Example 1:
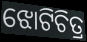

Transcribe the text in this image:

ଝୋଟିଚିତ୍ର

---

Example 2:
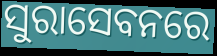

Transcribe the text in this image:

ସୁରାସେବନରେ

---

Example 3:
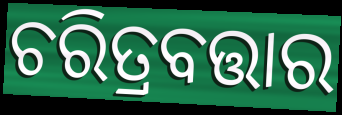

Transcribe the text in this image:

ଚରିତ୍ରବତ୍ତାର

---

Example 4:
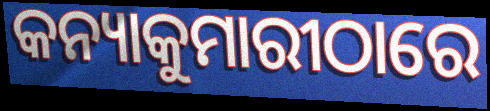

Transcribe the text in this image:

କନ୍ୟାକୁମାରୀଠାରେ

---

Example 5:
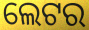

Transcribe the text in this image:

ଲେଟର